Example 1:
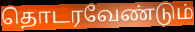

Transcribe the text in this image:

தொடரவேண்டும்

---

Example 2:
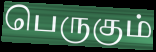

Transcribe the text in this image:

பெருகும்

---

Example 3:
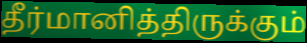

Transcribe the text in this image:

தீர்மானித்திருக்கும்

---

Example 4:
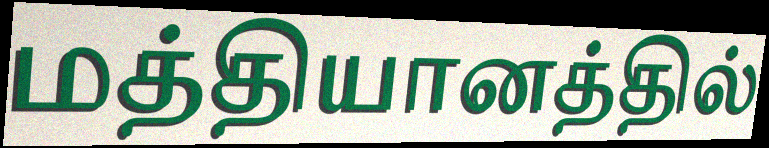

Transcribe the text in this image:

மத்தியானத்தில்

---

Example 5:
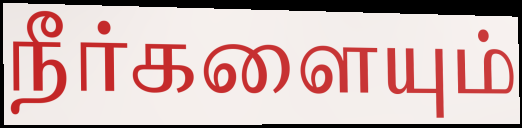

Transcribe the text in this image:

நீர்களையும்